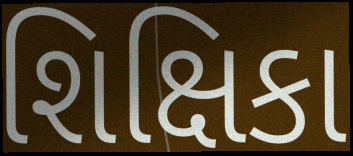
શિક્ષિકા